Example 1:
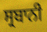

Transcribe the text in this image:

ਸ੍ਰਬਾਨੀ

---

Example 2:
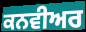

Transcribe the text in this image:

ਕਨਵੀਅਰ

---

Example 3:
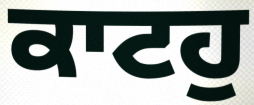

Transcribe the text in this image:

ਕਾਟਹੁ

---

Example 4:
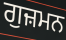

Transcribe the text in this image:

ਗੁਜ਼ਮਨ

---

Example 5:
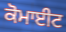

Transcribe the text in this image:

ਕੋਮਾਈਟ